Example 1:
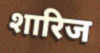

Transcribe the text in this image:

शारिज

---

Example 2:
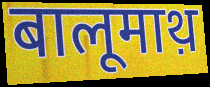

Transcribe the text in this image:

बालूमाथ़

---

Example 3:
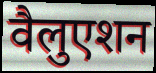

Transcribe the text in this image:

वैलुएशन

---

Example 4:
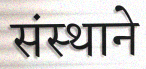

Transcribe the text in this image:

संस्थाने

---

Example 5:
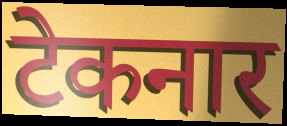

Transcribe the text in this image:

टेकनार